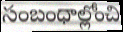
సంబంధాల్లోంచి